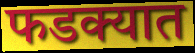
फडक्‍यात